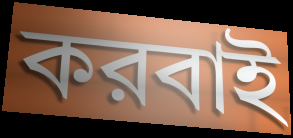
করবাই